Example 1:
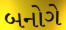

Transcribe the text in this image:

બનોગે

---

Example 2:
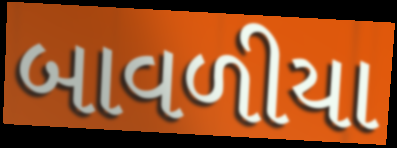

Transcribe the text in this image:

બાવળીયા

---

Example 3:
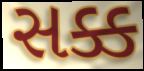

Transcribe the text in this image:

સક્ક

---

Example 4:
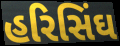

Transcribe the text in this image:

હરિસિંઘ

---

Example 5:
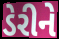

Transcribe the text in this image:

ડેરીને